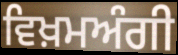
ਵਿਖ਼ਮਅੰਗੀ